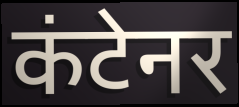
कंटेनर